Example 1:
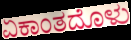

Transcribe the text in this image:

ಏಕಾಂತದೊಳು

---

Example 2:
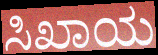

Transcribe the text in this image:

ಸಿಖಾಯ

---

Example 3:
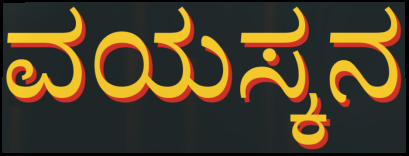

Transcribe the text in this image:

ವಯಸ್ಕನ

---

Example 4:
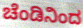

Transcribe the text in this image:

ಚೆಂಡಿನಿಂದ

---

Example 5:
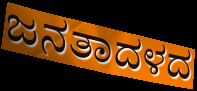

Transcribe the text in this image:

ಜನತಾದಳದ